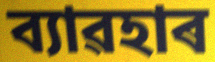
ব্যাৱহাৰ